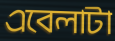
এবেলাটা